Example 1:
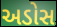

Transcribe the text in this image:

અડોસ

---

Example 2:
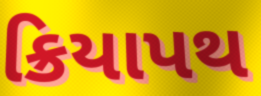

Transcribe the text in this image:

ક્રિયાપથ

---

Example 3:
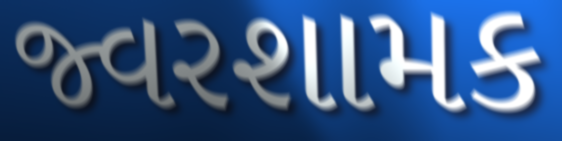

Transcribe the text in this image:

જ્વરશામક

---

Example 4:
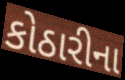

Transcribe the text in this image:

કોઠારીના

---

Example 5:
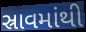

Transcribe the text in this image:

સ્રાવમાંથી